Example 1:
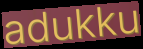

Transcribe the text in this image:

adukku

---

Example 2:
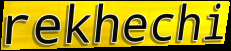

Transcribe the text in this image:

rekhechi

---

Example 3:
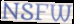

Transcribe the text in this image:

NSFW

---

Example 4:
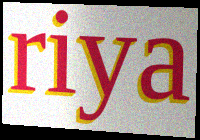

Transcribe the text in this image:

riya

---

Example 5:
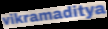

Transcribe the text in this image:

vikramaditya